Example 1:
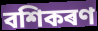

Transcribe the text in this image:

বশিকৰণ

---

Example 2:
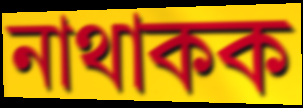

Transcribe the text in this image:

নাথাকক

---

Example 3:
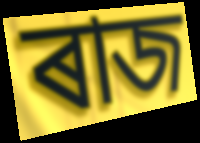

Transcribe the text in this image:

ৰাজ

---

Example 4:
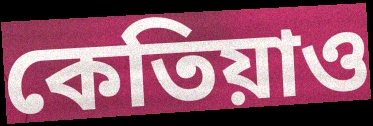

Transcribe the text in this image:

কেতিয়াও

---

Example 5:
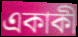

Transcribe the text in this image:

একাকী